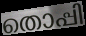
തൊപ്പി